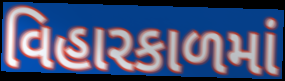
વિહારકાળમાં